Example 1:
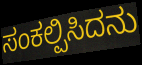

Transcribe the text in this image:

ಸಂಕಲ್ಪಿಸಿದನು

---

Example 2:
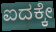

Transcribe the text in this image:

ಐದಕ್ಕೇ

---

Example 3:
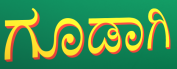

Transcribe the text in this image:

ಗೂಡಾಗಿ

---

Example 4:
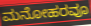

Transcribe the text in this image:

ಮನೋಹರವೂ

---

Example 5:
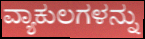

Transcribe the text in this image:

ವ್ಯಾಕುಲಗಳನ್ನು